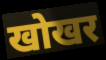
खोखर